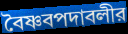
বৈষ্ণবপদাবলীর